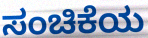
ಸಂಚಿಕೆಯ